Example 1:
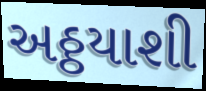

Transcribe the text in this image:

અઠ્ઠયાશી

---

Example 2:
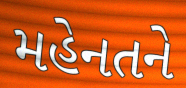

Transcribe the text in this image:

મહેનતને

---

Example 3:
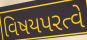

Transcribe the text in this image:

વિષયપરત્વે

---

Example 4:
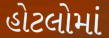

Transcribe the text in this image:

હોટલોમાં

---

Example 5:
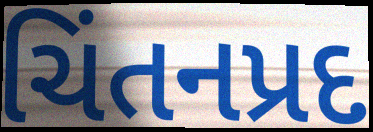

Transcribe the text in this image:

ચિંતનપ્રદ